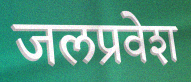
जलप्रवेश